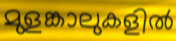
മുളങ്കാലുകളിൽ